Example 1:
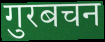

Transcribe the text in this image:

गुरबचन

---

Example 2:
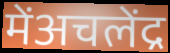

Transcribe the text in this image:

मेंअचलेंद्र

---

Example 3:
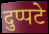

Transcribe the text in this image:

दुप्पटे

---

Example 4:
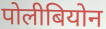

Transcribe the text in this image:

पोलीबियोन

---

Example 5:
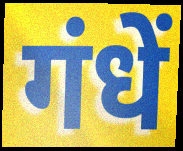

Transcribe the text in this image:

गंधें